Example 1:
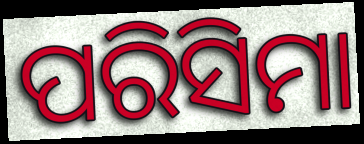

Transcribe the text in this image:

ପରିସିମା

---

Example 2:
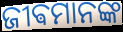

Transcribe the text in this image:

ଜୀଵମାନଙ୍କ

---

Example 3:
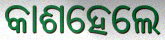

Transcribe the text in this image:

କାଶହେଲେ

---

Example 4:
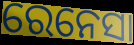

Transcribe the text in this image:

ରେନେସା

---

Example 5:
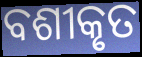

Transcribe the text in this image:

ବଶୀକୃତ